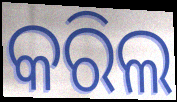
କରିଲ